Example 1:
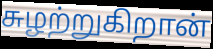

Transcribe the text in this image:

சுழற்றுகிறான்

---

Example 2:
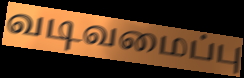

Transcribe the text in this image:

வடிவமைப்பு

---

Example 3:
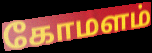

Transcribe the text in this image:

கோமளம்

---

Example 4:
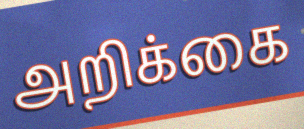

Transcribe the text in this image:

அறிக்கை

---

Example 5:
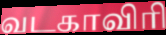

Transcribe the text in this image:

வடகாவிரி